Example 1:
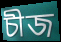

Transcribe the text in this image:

চীজ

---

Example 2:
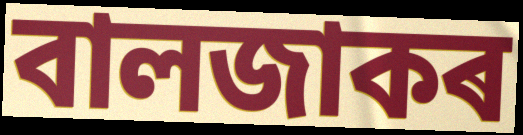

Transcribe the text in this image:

বালজাকৰ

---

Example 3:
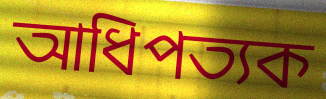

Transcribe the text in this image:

আধিপত্যক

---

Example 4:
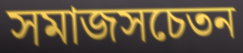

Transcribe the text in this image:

সমাজসচেতন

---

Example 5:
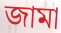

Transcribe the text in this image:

জামা